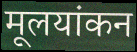
मूलयांकन